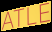
ATLE